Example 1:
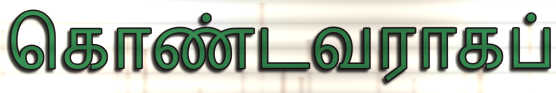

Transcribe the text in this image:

கொண்டவராகப்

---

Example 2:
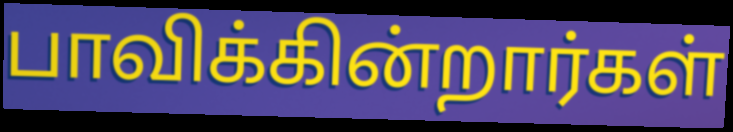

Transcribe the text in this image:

பாவிக்கின்றார்கள்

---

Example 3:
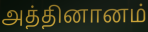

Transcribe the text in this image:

அத்தினானம்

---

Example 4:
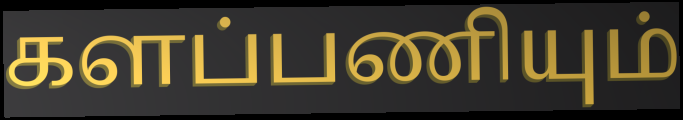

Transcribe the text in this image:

களப்பணியும்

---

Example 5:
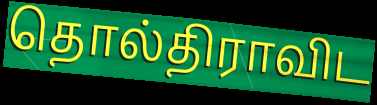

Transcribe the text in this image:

தொல்திராவிட